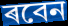
ৰবেন